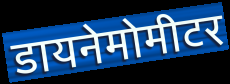
डायनेमोमीटर